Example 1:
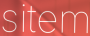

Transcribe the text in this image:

sitem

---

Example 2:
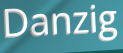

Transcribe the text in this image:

Danzig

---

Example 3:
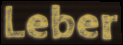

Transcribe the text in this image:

Leber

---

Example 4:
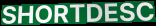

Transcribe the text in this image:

SHORTDESC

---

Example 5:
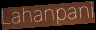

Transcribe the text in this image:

Lahanpani